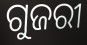
ଗୁଜରୀ